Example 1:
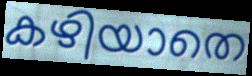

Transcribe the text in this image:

കഴിയാതെ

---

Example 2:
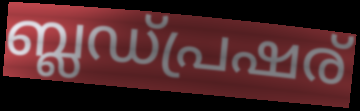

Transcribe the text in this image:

ബ്ലഡ്പ്രഷര്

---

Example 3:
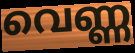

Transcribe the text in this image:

വെണ്ണ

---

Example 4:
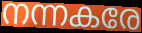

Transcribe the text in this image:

നന്നകരേ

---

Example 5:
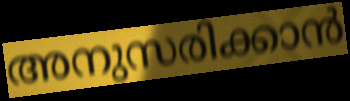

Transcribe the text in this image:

അനുസരിക്കാൻ